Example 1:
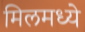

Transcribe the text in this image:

मिलमध्ये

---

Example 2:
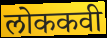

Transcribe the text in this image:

लोककवी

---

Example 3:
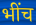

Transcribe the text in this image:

भींच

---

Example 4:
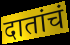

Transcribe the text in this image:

दातांचं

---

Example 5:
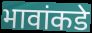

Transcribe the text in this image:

भावांकडे